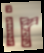
ir